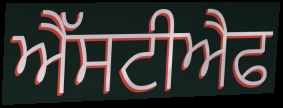
ਐੱਸਟੀਐਫ